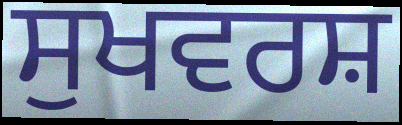
ਸੁਖਵਰਸ਼